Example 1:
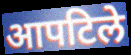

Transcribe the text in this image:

आपटिले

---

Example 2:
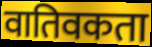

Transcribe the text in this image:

वातिवकता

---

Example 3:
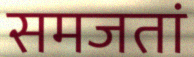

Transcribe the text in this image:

समजतां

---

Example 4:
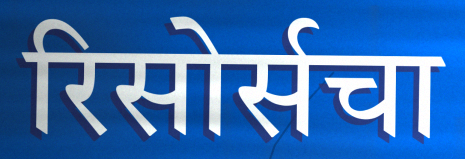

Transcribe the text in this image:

रिसोर्सचा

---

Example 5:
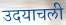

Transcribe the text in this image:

उदयाचली